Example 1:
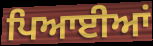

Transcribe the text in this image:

ਪਿਆਈਆਂ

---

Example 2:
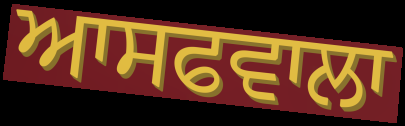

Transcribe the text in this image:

ਆਸਫਵਾਲਾ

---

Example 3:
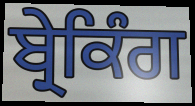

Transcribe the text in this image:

ਬ੍ਰੇਕਿੰਗ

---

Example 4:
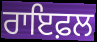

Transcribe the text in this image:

ਰਾਇਫ਼ਲ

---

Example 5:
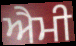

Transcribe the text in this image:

ਐਮੀ